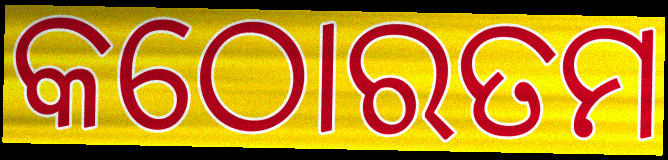
କଠୋରତମ